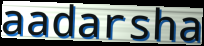
aadarsha